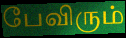
பேவிரும்